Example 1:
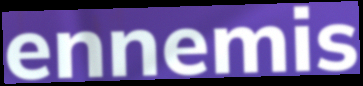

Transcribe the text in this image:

ennemis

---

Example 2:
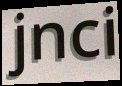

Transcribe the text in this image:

jnci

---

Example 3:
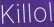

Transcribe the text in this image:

Killol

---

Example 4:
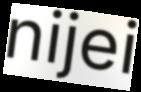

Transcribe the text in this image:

nijei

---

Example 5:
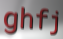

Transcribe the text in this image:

ghfj